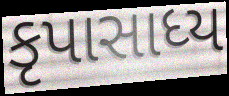
કૃપાસાધ્ય